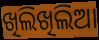
ଖିଲିଖିଲିଆ